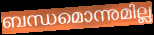
ബന്ധമൊന്നുമില്ല